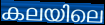
കലയിലെ